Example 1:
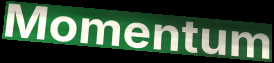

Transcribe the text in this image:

Momentum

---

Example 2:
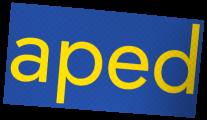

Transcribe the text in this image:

aped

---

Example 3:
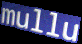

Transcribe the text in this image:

mullu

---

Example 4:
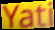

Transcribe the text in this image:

Yati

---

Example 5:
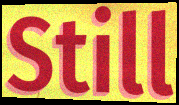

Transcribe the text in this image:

Still